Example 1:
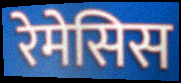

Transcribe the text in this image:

रेमेसिस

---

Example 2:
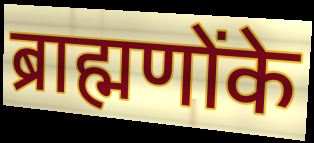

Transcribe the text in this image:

ब्राह्मणोंके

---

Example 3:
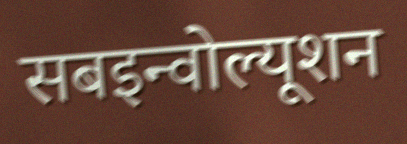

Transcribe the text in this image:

सबइन्वोल्यूशन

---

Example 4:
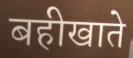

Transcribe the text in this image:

बहीखाते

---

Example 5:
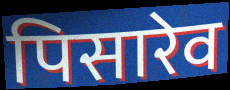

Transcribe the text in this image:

पिसारेव